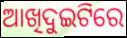
ଆଖିଦୁଇଟିରେ